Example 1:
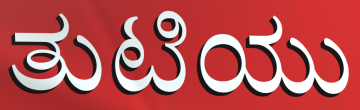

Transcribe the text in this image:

ತುಟಿಯು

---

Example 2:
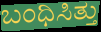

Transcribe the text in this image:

ಬಂಧಿಸಿತ್ತು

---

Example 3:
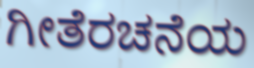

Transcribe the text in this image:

ಗೀತೆರಚನೆಯ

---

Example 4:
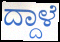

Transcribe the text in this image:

ದ್ದಾಳೆ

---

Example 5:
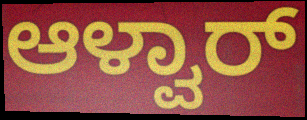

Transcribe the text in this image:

ಆಳ್ವಾರ್